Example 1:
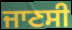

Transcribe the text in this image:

ਜਾਣਸੀ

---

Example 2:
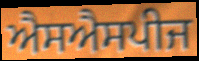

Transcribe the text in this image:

ਐਸਐਸਪੀਜ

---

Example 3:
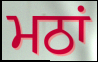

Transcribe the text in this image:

ਮਠਾਂ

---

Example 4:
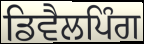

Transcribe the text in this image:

ਡਿਵੈਲਪਿੰਗ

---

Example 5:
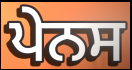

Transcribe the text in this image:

ਪੇਨਸ